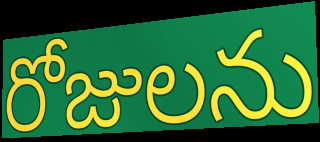
రోజులను